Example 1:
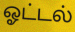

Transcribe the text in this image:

ஓட்டல்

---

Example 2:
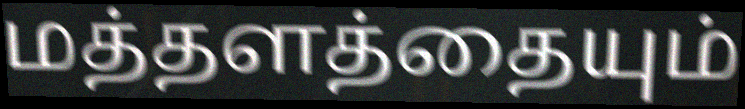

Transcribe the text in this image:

மத்தளத்தையும்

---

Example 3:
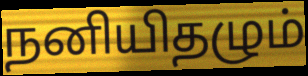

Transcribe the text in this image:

நனியிதழும்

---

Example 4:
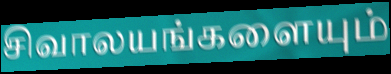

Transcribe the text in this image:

சிவாலயங்களையும்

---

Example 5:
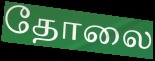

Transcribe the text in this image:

தோலை